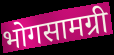
भोगसामग्री